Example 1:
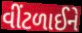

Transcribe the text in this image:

વીંટળાઈને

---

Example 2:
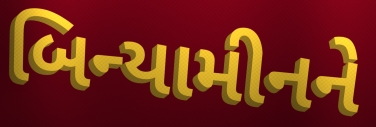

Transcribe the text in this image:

બિન્યામીનને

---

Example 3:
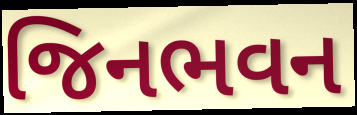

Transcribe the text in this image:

જિનભવન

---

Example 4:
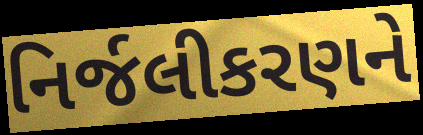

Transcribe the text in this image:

નિર્જલીકરણને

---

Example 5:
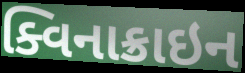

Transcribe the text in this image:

ક્વિનાક્રાઇન